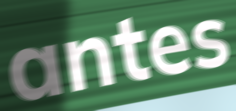
antes